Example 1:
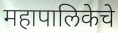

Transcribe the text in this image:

महापालिकेचे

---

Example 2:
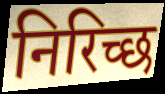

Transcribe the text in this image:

निरिच्छ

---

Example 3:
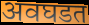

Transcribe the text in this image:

अवघडत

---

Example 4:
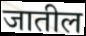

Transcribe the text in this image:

जातील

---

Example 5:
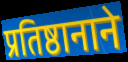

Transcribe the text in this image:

प्रतिष्ठानाने